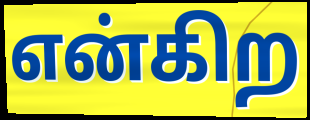
என்கிற